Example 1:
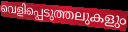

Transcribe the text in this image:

വെളിപ്പെടുത്തലുകളും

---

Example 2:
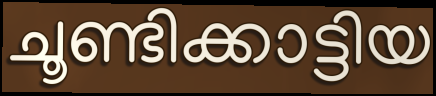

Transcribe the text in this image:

ചൂണ്ടിക്കാട്ടിയ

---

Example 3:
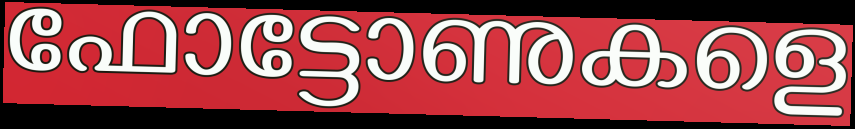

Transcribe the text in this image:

ഫോട്ടോണുകളെ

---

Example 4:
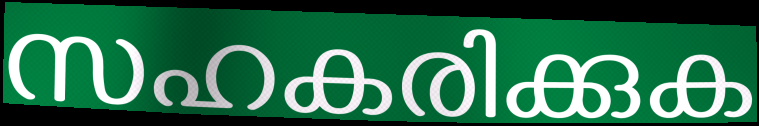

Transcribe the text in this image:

സഹകരിക്കുക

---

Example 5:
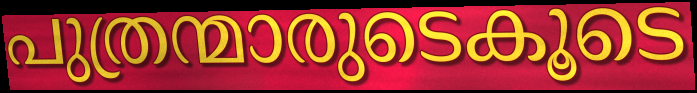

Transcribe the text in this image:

പുത്രന്മാരുടെകൂടെ